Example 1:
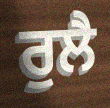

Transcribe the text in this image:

ਰੁਲੈ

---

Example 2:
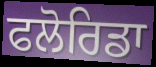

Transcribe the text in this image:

ਫਲੋਰਿਡਾ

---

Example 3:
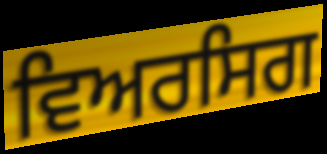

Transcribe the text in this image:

ਵਿਅਰਸਿਗ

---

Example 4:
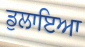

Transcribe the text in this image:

ਡੁਲਾਇਆ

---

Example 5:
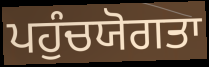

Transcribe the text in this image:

ਪਹੁੰਚਯੋਗਤਾ